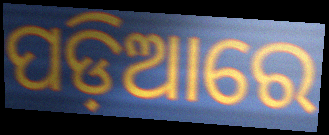
ପଡ଼ିଆରେ